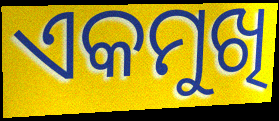
ଏକମୁଖି